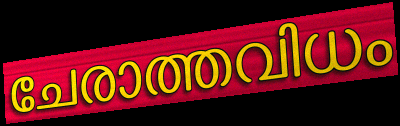
ചേരാത്തവിധം